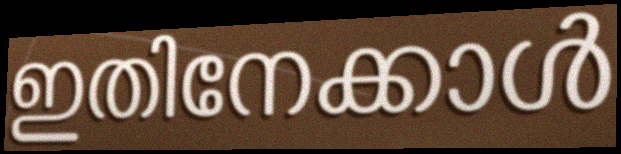
ഇതിനേക്കാൾ